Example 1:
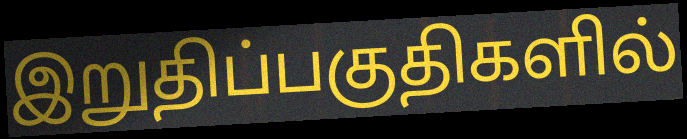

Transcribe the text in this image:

இறுதிப்பகுதிகளில்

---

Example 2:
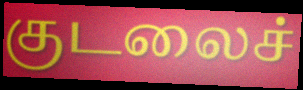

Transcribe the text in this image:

குடலைச்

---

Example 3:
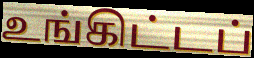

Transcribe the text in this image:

உங்கிட்டப்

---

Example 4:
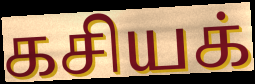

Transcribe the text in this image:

கசியக்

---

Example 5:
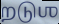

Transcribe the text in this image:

றடுஶ